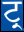
ਟ੍ਰ